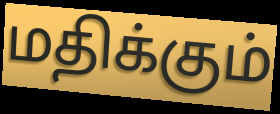
மதிக்கும்